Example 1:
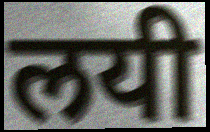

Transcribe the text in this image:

लयी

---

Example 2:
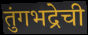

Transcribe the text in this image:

तुंगभद्रेची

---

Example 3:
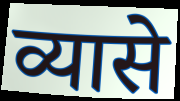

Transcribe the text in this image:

व्यासे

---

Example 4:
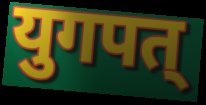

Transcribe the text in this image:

युगपत्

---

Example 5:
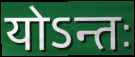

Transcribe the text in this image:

योऽन्तः